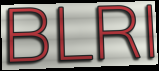
BLRI